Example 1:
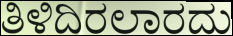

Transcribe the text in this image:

ತಿಳಿದಿರಲಾರದು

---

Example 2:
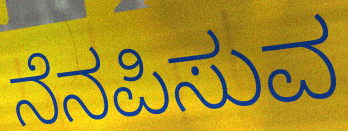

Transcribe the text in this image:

ನೆನಪಿಸುವ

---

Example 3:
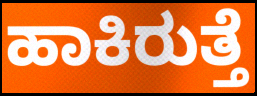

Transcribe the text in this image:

ಹಾಕಿರುತ್ತೆ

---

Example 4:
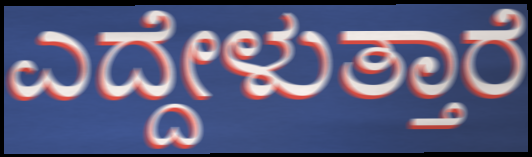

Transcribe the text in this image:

ಎದ್ದೇಳುತ್ತಾರೆ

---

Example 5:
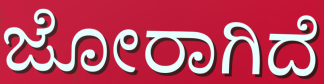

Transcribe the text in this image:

ಜೋರಾಗಿದೆ